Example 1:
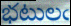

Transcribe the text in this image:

భటులఁ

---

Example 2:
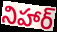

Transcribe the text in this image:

నిహార్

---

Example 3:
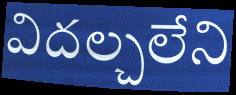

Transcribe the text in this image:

విదల్చలేని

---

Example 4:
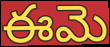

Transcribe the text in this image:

ఈమె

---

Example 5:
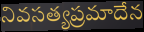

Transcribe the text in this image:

నివసత్యప్రమాదేన